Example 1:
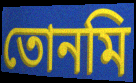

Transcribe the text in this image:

তোনমি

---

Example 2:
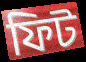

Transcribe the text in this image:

ফিট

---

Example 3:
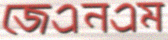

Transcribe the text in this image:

জেএনএম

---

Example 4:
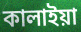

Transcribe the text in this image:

কালাইয়া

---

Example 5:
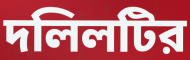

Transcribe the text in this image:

দলিলটির